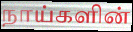
நாய்களின்